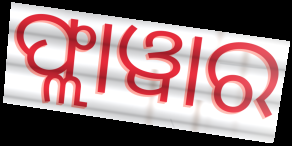
ଫ୍ଲାୱାର